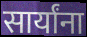
सार्यांना